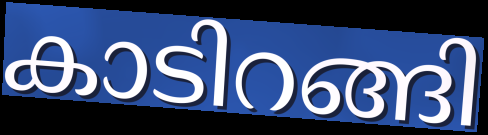
കാടിറങ്ങി